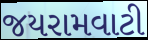
જયરામવાટી